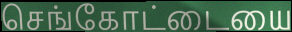
செங்கோட்டையை